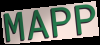
MAPP